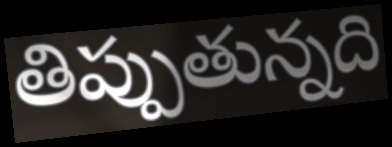
తిప్పుతున్నది